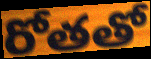
రోతతో